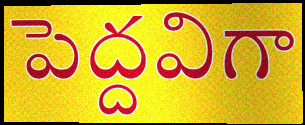
పెద్దవిగా